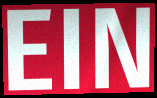
EIN